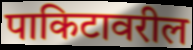
पाकिटावरील